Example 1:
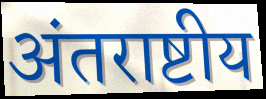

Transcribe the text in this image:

अंतराष्टीय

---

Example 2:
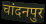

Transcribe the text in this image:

चांदनपुर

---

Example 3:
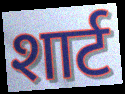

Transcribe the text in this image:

शार्ट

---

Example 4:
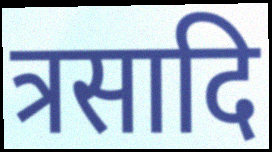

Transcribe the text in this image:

त्रसादि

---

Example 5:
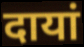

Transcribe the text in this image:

दायां